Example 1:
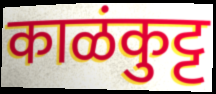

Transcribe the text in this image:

काळंकुट्ट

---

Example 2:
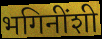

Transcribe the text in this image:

भगिनींशी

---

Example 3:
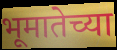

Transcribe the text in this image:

भूमातेच्या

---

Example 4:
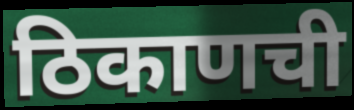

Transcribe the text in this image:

ठिकाणची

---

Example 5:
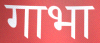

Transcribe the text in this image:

गाभा